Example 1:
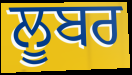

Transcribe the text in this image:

ਲੂਬਰ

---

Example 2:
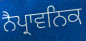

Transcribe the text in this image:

ਨੈਪ੍ਰਾਵਨਿਕ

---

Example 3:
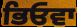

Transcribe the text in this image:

ਭਿਓਵਾ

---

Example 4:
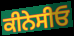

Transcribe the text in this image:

ਕੀਨੇਸੀਓ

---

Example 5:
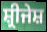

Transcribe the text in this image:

ਸ਼੍ਰੀਜੇਸ਼